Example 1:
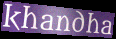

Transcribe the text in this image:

khandha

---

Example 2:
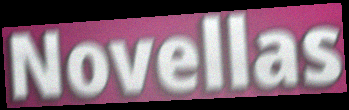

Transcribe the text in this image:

Novellas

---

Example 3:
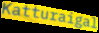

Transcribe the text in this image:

Katturaigal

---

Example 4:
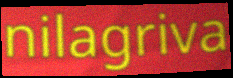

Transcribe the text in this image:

nilagriva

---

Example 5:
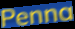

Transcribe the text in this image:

Penna